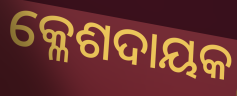
କ୍ଳେଶଦାୟକ